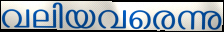
വലിയവരെന്നു